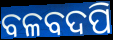
ବଳବଦପି